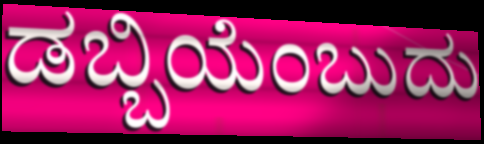
ಡಬ್ಬಿಯೆಂಬುದು